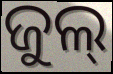
ଜୁଲ୍